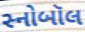
સ્નોબૉલ